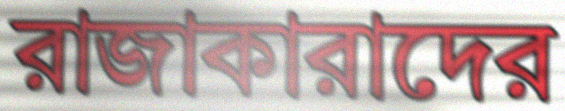
রাজাকারাদের